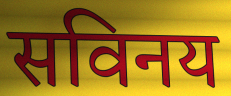
सविनय